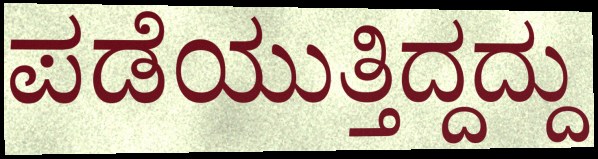
ಪಡೆಯುತ್ತಿದ್ದದ್ದು